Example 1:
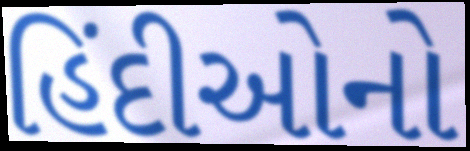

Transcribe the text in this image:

હિંદીઓનો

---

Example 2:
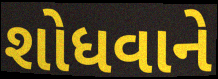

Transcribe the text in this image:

શોધવાને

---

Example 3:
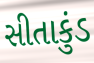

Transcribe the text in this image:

સીતાકુંડ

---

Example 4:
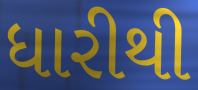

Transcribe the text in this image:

ધારીથી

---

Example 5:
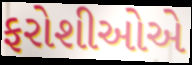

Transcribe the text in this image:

ફરોશીઓએ